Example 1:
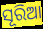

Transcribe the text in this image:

ସୂରିଆ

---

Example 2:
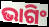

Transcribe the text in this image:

ଭାଗିଂ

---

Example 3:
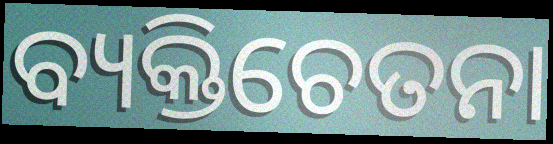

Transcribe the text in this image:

ବ୍ୟକ୍ତିଚେତନା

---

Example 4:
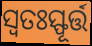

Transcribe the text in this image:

ସ୍ୱତଃସ୍ଫୂର୍ତ୍ତ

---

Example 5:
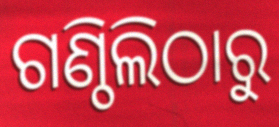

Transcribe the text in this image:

ଗଣ୍ଠିଲିଠାରୁ